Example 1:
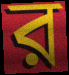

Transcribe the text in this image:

ব়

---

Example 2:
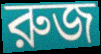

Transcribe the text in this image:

রুজ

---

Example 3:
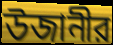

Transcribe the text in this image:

উজানীর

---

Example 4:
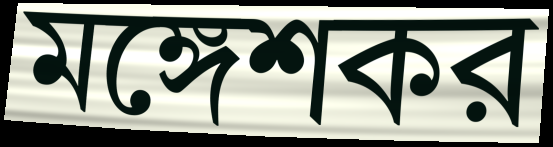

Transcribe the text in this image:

মঙ্গেশকর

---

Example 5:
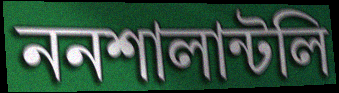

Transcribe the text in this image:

ননশালান্টলি